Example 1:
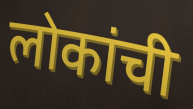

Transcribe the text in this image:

लोकांची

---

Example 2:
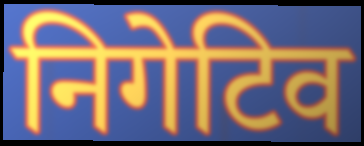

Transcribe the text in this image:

निगेटिव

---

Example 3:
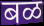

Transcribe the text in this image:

बळ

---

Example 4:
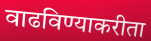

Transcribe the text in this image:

वाढविण्याकरीता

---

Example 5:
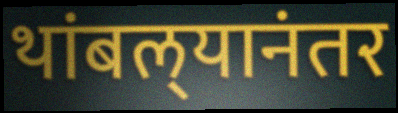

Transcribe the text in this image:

थांबल्यानंतर